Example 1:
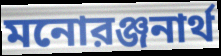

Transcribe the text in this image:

মনোরঞ্জনার্থ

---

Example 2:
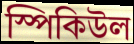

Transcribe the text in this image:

স্পিকিউল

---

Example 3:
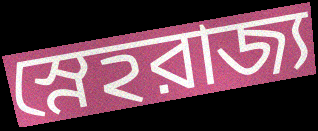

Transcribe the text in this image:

স্নেহরাজ্য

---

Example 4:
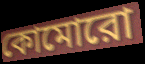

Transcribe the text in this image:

কোমোরো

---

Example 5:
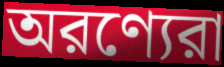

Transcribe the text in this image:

অরণ্যেরা